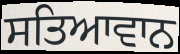
ਸਤਿਆਵਾਨ